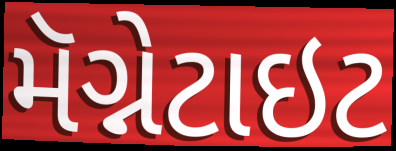
મૅગ્નેટાઇટ